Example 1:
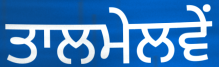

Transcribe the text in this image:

ਤਾਲਮੇਲਵੇਂ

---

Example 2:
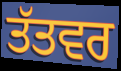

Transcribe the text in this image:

ਤੱਤਵਰ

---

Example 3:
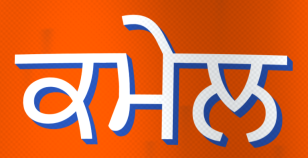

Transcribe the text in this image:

ਕਮੇਲ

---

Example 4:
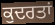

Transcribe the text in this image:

ਕੁਦਰਤਾਂ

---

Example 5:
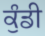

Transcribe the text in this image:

ਕੁੰਡੀ